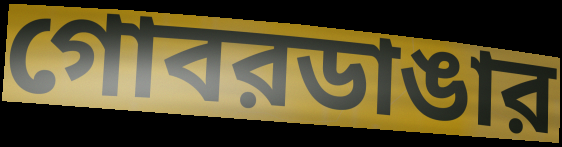
গোবরডাঙার